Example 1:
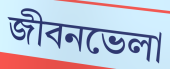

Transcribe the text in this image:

জীবনভেলা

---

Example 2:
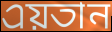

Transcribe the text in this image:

এয়তান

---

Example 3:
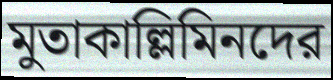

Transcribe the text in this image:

মুতাকাল্লিমিনদের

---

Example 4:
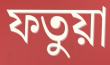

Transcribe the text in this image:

ফতুয়া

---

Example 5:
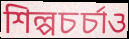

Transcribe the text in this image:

শিল্পচর্চাও